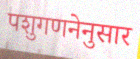
पशुगणनेनुसार